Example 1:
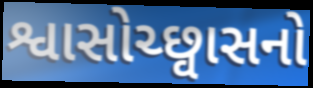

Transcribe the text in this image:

શ્વાસોચ્છ્વાસનો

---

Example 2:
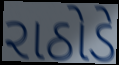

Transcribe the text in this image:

રાઠોડે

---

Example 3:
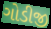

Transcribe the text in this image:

ગોડીજી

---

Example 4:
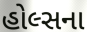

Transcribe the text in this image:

હોલ્સના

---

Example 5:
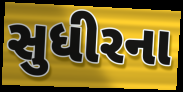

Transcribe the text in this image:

સુધીરના